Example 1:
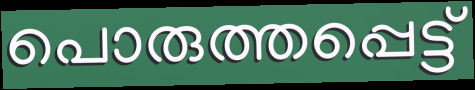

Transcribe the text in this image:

പൊരുത്തപ്പെട്ട്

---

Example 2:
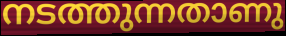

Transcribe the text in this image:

നടത്തുന്നതാണു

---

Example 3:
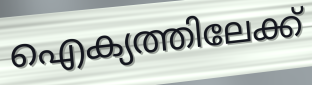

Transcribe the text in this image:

ഐക്യത്തിലേക്ക്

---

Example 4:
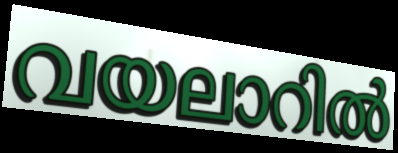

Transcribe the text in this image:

വയലാറിൽ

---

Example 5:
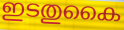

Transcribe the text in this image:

ഇടതുകൈ